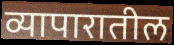
व्यापारातील